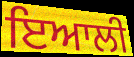
ਇਆਲੀ